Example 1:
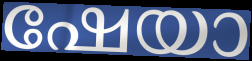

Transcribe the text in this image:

ഷേയാ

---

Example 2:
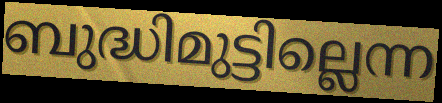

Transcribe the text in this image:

ബുദ്ധിമുട്ടില്ലെന്ന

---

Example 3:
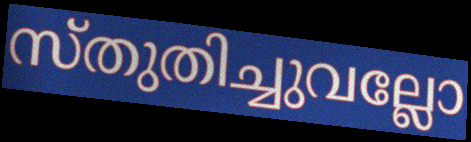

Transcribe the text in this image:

സ്തുതിച്ചുവല്ലോ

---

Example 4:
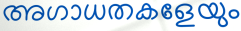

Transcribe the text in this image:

അഗാധതകളേയും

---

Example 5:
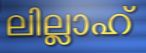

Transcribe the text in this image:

ലില്ലാഹ്